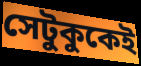
সেটুকুকেই